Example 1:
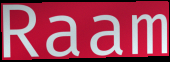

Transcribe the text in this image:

Raam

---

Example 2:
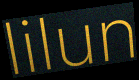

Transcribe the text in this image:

lilun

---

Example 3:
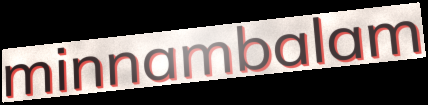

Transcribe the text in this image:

minnambalam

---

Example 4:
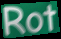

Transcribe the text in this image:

Rot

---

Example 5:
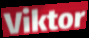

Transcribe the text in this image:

Viktor